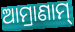
ଆମ୍ରାଣାମ୍